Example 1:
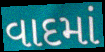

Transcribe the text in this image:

વાદમાં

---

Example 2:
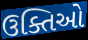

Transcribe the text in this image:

ઉક્તિઓ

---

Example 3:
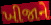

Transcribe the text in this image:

ખીજાને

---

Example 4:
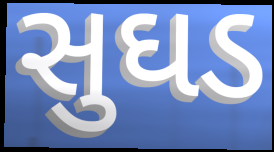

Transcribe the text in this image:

સુઘડ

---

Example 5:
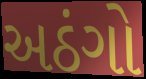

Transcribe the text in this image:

અઠંગો